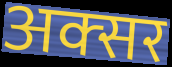
अक्‍सर